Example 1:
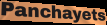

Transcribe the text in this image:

Panchayets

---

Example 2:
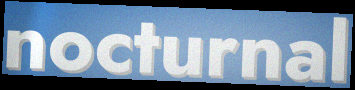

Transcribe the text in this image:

nocturnal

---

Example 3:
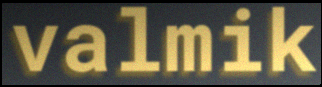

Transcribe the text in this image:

valmik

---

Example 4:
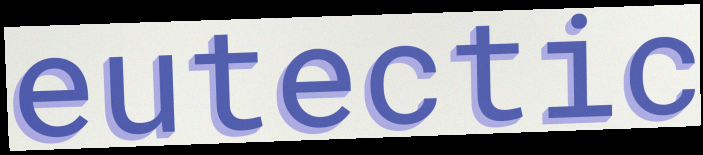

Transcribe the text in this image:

eutectic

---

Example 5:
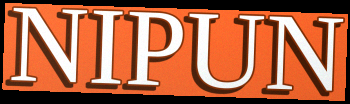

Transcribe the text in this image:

NIPUN